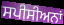
ਸਪੀਸੀਅਨਾਂ